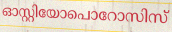
ഓസ്റ്റിയോപൊറോസിസ്